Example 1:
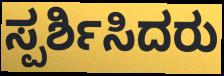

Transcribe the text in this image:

ಸ್ಪರ್ಶಿಸಿದರು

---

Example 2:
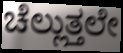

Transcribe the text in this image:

ಚೆಲ್ಲುತ್ತಲೇ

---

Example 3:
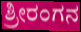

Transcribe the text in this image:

ಶ್ರೀರಂಗನ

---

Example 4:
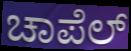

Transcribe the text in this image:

ಚಾಪೆಲ್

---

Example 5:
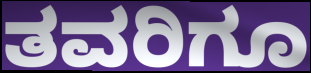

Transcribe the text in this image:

ತವರಿಗೂ